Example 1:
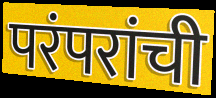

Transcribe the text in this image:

परंपरांची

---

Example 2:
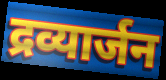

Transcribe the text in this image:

द्रव्यार्जन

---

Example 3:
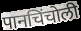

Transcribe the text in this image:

पानचिंचोली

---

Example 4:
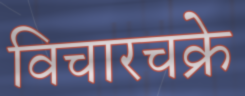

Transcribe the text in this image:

विचारचक्रे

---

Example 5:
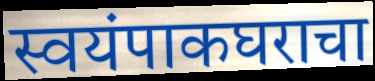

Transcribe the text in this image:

स्वयंपाकघराचा